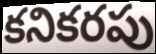
కనికరపు